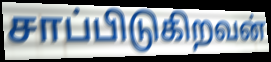
சாப்பிடுகிறவன்